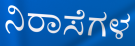
ನಿರಾಸೆಗಳ